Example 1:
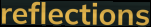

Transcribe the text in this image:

reflections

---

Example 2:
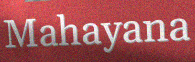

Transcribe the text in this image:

Mahayana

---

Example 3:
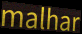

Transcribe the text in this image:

malhar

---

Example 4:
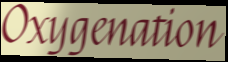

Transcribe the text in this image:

Oxygenation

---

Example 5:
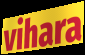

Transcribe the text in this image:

vihara